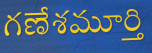
గణేశమూర్తి